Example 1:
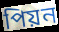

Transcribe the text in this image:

পিয়ন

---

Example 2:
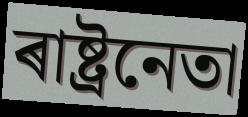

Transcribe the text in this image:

ৰাষ্ট্ৰনেতা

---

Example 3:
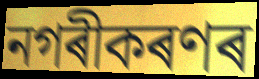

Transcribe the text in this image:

নগৰীকৰণৰ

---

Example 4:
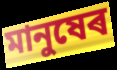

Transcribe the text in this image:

মানুষেৰ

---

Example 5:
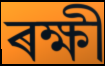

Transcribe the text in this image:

ৰক্ষী